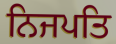
ਨਿਜਪਤਿ